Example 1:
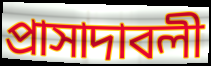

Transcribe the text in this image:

প্রাসাদাবলী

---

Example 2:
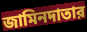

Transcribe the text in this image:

জামিনদাতার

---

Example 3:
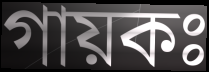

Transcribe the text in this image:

গায়কঃ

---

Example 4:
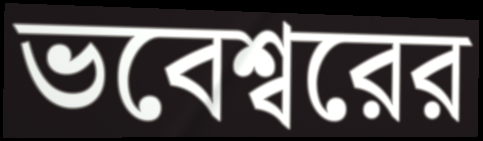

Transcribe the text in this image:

ভবেশ্বরের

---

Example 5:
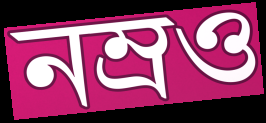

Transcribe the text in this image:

নম্রও